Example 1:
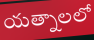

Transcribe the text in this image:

యత్నాలలో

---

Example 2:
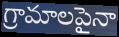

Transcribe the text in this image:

గ్రామాలపైనా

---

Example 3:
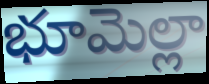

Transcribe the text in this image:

భూమెల్లా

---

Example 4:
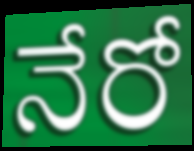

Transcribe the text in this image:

నేరో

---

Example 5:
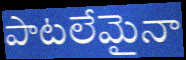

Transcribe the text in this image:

పాటలేమైనా